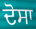
ਦੋਸਾ